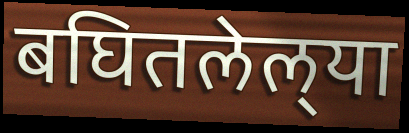
बघितलेल्या